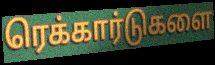
ரெக்கார்டுகளை